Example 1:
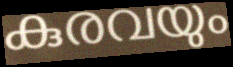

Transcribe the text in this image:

കുരവയും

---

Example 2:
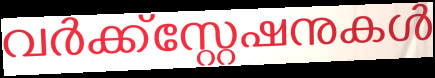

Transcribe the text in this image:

വർക്ക്സ്റ്റേഷനുകൾ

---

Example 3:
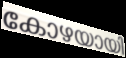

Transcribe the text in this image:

കോഴയായി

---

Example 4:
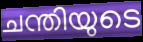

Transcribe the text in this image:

ചന്തിയുടെ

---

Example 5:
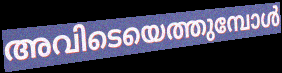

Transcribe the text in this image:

അവിടെയെത്തുമ്പോൾ